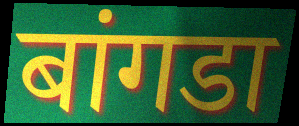
बांगडा